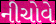
નીચોવે